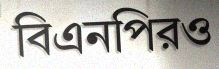
বিএনপিরও